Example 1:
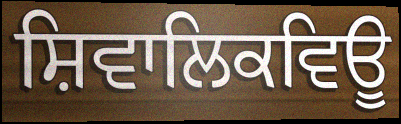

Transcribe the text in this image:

ਸ਼ਿਵਾਲਿਕਵਿਊ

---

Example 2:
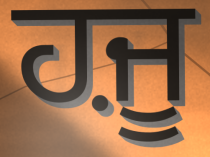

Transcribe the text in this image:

ਹ਼ਜੂ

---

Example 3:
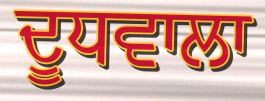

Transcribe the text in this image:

ਦੂਧਵਾਲਾ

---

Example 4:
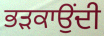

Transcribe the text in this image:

ਭੜਕਾਉਂਦੀ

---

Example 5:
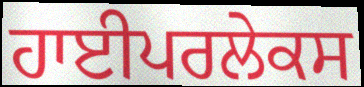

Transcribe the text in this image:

ਹਾਈਪਰਲੇਕਸ